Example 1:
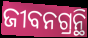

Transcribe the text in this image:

ଜୀବନଗ୍ରନ୍ଥି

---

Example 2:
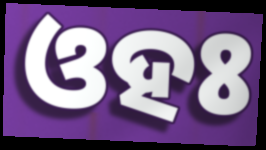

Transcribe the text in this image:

ଓହଃ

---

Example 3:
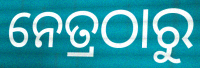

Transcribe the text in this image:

ନେତ୍ରଠାରୁ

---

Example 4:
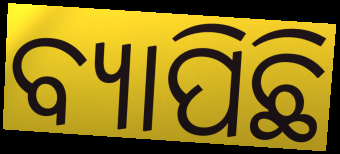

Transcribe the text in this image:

ବ୍ୟାପିଛି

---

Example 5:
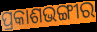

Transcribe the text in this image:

ପ୍ରକାଶଭଙ୍ଗୀର